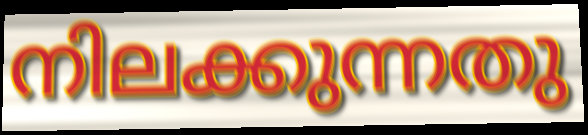
നിലക്കുന്നതു